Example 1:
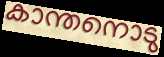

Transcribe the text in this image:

കാന്തനൊടു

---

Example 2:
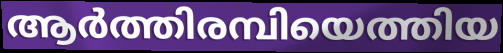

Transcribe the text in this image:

ആർത്തിരമ്പിയെത്തിയ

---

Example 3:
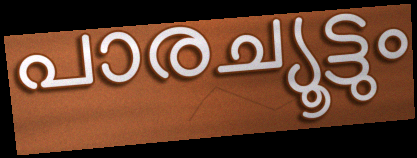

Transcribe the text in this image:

പാരച്യൂട്ടും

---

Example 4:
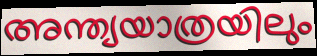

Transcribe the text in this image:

അന്ത്യയാത്രയിലും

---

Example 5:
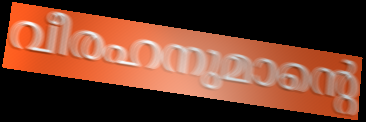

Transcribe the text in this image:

വീരഹനുമാന്റെ